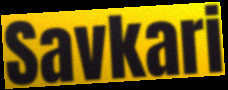
Savkari